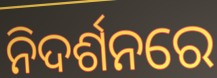
ନିଦର୍ଶନରେ